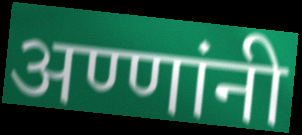
अण्णांनी